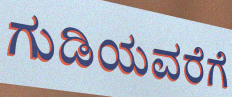
ಗುಡಿಯವರೆಗೆ